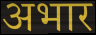
अभार